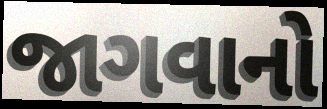
જાગવાનો